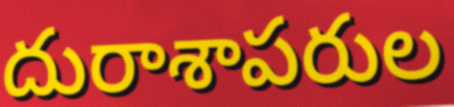
దురాశాపరుల